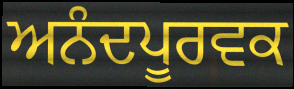
ਅਨੰਦਪੂਰਵਕ